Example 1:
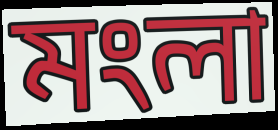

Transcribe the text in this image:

মংলা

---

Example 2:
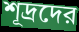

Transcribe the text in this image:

শূদ্রদের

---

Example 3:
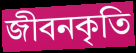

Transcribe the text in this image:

জীবনকৃতি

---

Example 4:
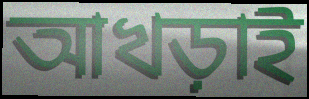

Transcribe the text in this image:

আখড়াই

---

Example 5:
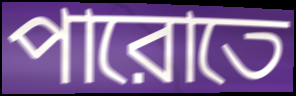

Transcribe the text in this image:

পারোতে